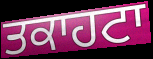
ਤਕਾਹਟਾ